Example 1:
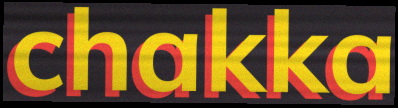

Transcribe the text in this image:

chakka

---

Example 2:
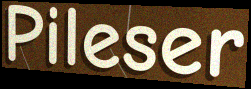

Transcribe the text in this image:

Pileser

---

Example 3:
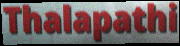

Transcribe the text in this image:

Thalapathi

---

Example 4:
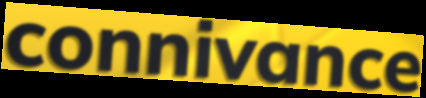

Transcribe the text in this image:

connivance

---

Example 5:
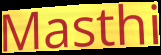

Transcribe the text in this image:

Masthi